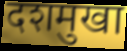
दशमुखा